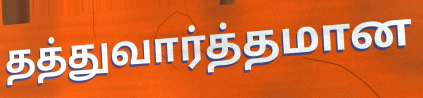
தத்துவார்த்தமான